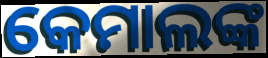
କେମାଲଙ୍କ